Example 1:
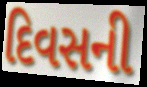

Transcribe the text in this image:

દિવસની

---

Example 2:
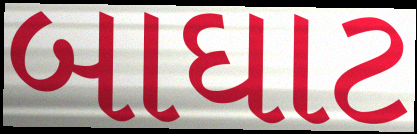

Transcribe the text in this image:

બાઘાટ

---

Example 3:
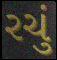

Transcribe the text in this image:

રચું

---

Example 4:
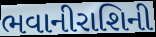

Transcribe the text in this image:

ભવાનીરાશિની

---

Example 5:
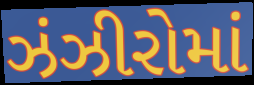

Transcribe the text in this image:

ઝંઝીરોમાં